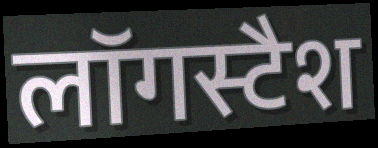
लॉगस्टैश